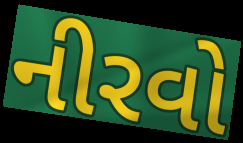
નીરવો